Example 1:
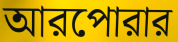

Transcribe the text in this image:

আরপোরার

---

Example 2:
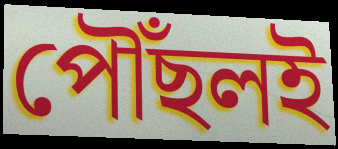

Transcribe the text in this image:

পৌঁছলই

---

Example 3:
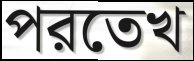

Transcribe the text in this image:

পরতেখ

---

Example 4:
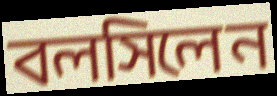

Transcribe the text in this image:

বলসিলেন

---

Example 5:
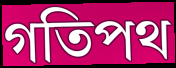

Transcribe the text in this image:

গতিপথ